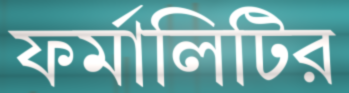
ফর্মালিটির